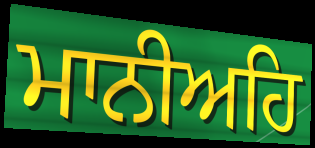
ਮਾਨੀਅਹਿ